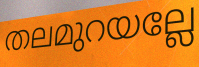
തലമുറയല്ലേ